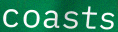
coasts